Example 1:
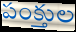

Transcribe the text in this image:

పంక్తుల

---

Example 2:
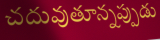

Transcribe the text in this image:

చదువుతూన్నప్పుడు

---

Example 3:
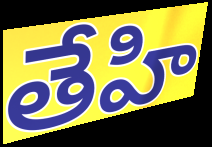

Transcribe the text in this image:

తేహి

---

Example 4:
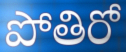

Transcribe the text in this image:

పోతిరో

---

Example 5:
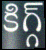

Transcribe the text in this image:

కిగ్గ్